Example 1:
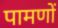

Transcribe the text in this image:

पामणों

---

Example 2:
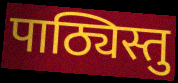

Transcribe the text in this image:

पाठ्यिस्तु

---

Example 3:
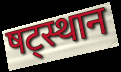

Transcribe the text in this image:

षट्स्थान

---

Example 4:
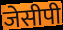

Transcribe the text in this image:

जेसीपी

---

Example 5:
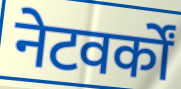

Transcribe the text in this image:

नेटवर्कों